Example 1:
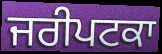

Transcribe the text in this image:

ਜਰੀਪਟਕਾ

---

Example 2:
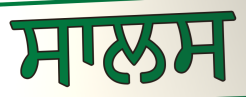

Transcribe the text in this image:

ਸਾਲਸ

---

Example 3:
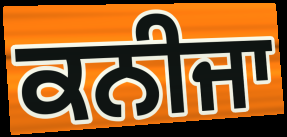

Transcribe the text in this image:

ਕਨੀਜਾ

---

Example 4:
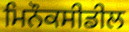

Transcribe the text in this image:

ਮਿਨੌਕਸੀਡੀਲ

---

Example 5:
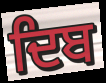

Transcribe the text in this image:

ਦਿਬ